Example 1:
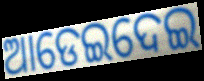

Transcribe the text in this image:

ଆଡେଇଦେଇ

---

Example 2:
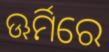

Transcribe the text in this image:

ଊର୍ମିରେ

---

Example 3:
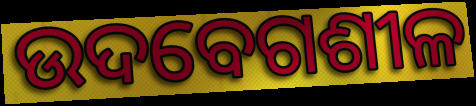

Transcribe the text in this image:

ଉଦବେଗଶୀଳ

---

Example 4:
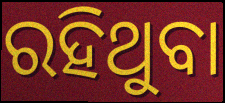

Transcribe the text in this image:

ରହିଥୁବା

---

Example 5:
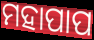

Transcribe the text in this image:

ମହାପାପ